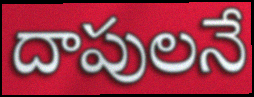
దాపులనే